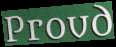
Proud